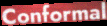
Conformal